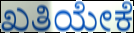
ಖತಿಯೇಕೆ